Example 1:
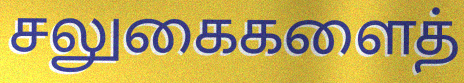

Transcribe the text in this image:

சலுகைகளைத்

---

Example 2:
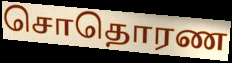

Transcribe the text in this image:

சொதொரண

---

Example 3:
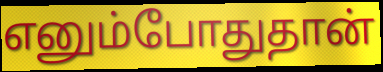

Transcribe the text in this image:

எனும்போதுதான்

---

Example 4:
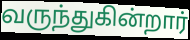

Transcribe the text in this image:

வருந்துகின்றார்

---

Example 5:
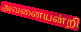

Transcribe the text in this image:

அவனையன்றி